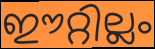
ഈറ്റില്ലം